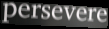
persevere